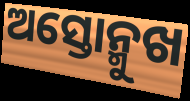
ଅସ୍ତୋନ୍ମୁଖ